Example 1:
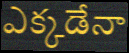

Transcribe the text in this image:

ఎక్కడేనా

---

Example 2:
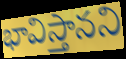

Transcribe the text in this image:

భావిస్తానని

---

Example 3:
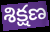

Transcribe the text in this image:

శిక్షణ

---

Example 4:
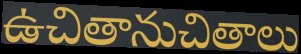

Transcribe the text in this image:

ఉచితానుచితాలు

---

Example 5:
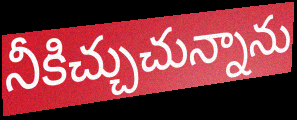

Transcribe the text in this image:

నీకిచ్చుచున్నాను